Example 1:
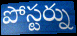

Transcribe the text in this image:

పోస్టర్ను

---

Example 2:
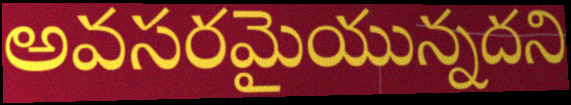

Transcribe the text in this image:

అవసరమైయున్నదని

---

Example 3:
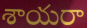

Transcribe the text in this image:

శాయరా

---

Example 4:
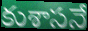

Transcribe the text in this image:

కుశాసనే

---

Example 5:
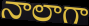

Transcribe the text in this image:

నాలాగా